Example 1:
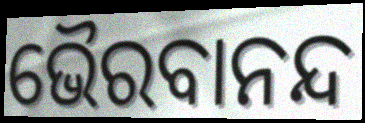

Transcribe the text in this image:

ଭୈରବାନନ୍ଦ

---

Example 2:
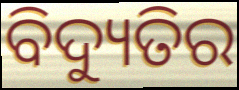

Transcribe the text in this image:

ବିଦ୍ୟୁତିର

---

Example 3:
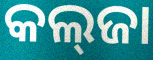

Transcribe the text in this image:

କଲ୍‌ଜା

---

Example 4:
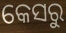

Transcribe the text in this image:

କେସରୁ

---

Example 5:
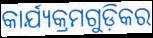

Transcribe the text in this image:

କାର୍ଯ୍ୟକ୍ରମଗୁଡ଼ିକର